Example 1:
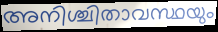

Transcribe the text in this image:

അനിശ്ചിതാവസ്ഥയും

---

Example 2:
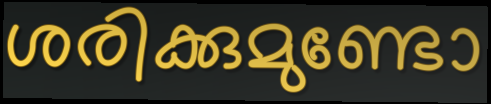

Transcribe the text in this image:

ശരിക്കുമുണ്ടോ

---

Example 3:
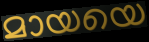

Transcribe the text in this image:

മായയെ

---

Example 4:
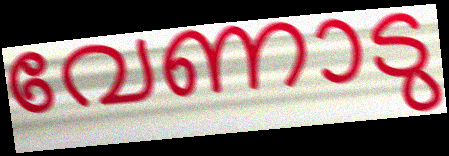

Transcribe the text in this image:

വേണാടു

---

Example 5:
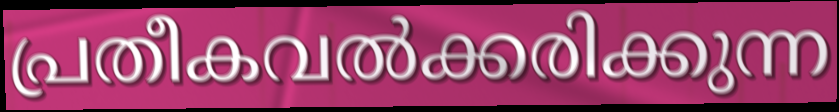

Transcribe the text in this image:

പ്രതീകവൽക്കരിക്കുന്ന